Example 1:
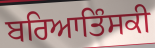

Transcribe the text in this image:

ਬਰਿਆਤਿੰਸਕੀ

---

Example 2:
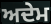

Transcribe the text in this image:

ਅਦੇਮ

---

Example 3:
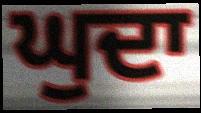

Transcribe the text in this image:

ਘੁਦਾ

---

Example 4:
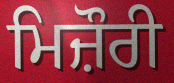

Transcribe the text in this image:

ਮਿਜ਼ੌਰੀ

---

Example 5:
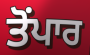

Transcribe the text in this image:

ਤੋਂਪਾਰ